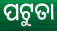
ପଟୁତା